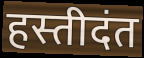
हस्तीदंत